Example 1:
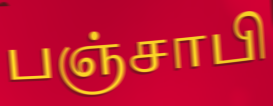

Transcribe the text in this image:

பஞ்சாபி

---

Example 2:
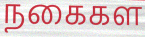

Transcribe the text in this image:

நகைகள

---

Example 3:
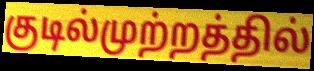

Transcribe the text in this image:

குடில்முற்றத்தில்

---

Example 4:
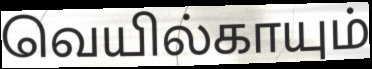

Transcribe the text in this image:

வெயில்காயும்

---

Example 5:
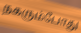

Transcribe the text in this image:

நகரும்போது